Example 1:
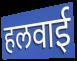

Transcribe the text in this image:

हलवाई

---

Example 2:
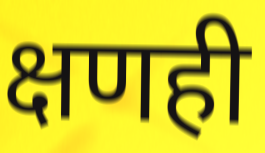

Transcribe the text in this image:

क्षणही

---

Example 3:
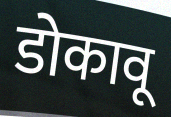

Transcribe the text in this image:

डोकावू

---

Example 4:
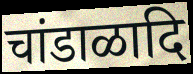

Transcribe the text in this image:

चांडाळादि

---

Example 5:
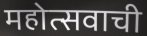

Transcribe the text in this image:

महोत्सवाची